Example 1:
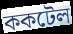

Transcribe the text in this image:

ককটেল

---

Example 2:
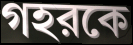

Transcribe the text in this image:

গহরকে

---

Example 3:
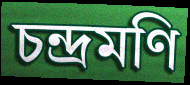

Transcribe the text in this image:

চন্দ্রমণি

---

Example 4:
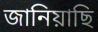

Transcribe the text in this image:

জানিয়াছি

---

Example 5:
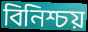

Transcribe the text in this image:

বিনিশ্চয়